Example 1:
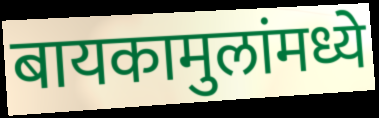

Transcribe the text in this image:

बायकामुलांमध्ये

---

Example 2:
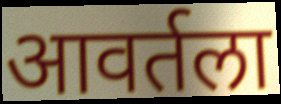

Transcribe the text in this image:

आवर्तला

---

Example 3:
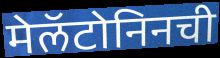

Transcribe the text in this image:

मेलॅटोनिनची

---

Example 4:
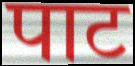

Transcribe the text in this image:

पाट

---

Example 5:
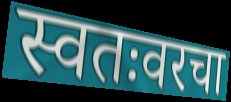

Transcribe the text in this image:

स्वतःवरचा